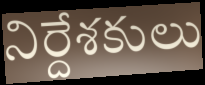
నిర్దేశకులు